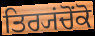
ਤਿਰ੍ਯਂਚੋਂਕੋ